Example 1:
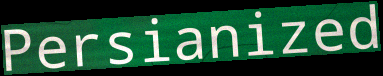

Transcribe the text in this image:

Persianized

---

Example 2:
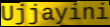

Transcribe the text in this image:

Ujjayini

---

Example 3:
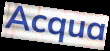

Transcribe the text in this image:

Acqua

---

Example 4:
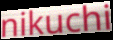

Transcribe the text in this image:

nikuchi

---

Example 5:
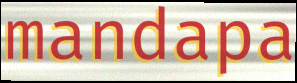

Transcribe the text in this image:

mandapa